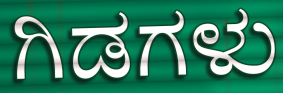
ಗಿಡಗಳು